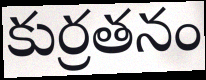
కుర్రతనం